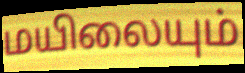
மயிலையும்